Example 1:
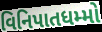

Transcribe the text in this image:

વિનિપાતધમ્મો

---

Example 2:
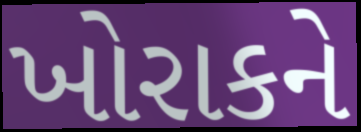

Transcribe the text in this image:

ખોરાકને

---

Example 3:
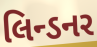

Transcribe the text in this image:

લિન્ડનર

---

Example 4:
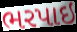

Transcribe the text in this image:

ભરપાઇ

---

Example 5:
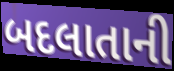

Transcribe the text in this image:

બદલાતાની